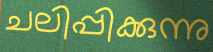
ചലിപ്പിക്കുന്നു